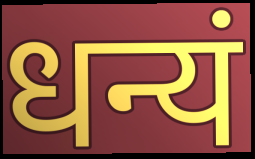
धन्यं